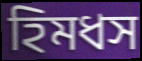
হিমধস